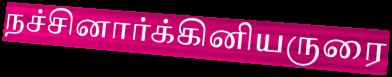
நச்சினார்க்கினியருரை